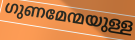
ഗുണമേന്മയുള്ള